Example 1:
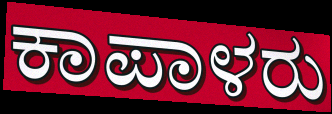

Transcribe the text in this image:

ಕಾಪಾಳರು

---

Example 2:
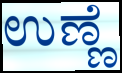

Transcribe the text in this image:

ಉಣ್ಣೆ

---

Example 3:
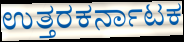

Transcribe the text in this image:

ಉತ್ತರಕರ್ನಾಟಕ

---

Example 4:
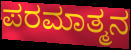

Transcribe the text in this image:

ಪರಮಾತ್ಮನ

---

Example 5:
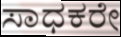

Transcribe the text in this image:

ಸಾಧಕರೇ